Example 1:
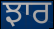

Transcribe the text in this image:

ਝਾਰ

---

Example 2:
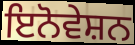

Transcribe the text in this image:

ਇਨੋਵੇਸ਼ਨ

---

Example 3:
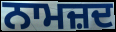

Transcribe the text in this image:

ਨਾਮਜ਼ਦ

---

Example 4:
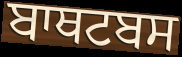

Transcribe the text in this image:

ਬਾਥਟਬਸ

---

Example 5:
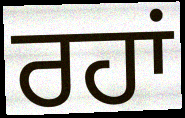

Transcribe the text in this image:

ਰਹਾਂ